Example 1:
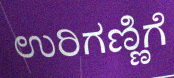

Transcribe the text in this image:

ಉರಿಗಣ್ಣಿಗೆ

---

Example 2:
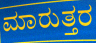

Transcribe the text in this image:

ಮಾರುತ್ತರ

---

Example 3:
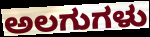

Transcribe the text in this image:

ಅಲಗುಗಳು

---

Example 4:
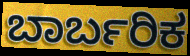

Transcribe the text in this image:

ಬಾರ್ಬರಿಕ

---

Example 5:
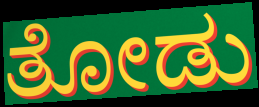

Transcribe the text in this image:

ತೋಡು